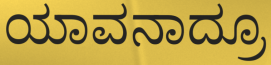
ಯಾವನಾದ್ರೂ